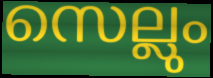
സെല്ലും